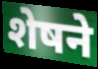
शेषने